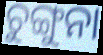
ଚୁଙ୍ଗୁନା